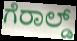
ಗೆರಾಲ್ಡ್